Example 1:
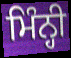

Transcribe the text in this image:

ਮਿੰਨ੍ਹੀ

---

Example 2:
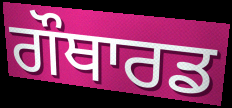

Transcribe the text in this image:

ਗੌਥਾਰਡ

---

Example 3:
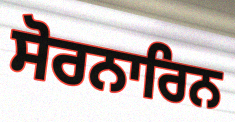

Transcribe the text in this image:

ਸੋਰਨਾਰਿਨ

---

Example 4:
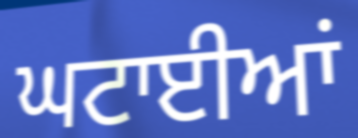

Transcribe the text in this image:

ਘਟਾਈਆਂ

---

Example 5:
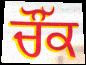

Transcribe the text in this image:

ਚੌੱਕ